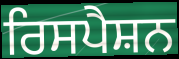
ਰਿਸਪੈਸ਼ਨ